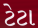
ટેટા